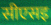
सीएसइ